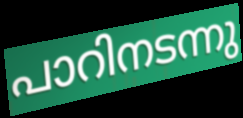
പാറിനടന്നു